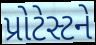
પ્રોટેસ્ટને